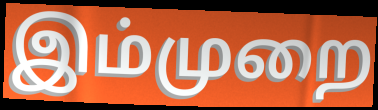
இம்முறை